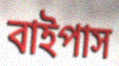
বাইপাস